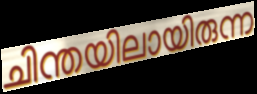
ചിന്തയിലായിരുന്ന